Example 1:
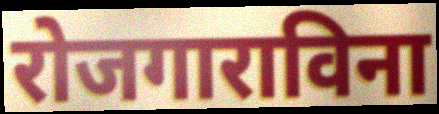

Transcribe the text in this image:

रोजगाराविना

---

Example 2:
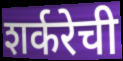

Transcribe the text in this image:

शर्करेची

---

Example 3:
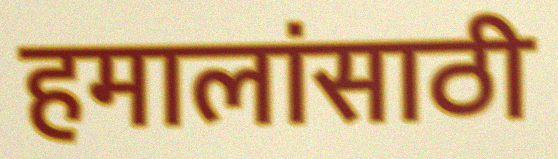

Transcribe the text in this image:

हमालांसाठी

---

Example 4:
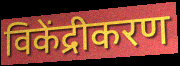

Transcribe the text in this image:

विकेंद्रीकरण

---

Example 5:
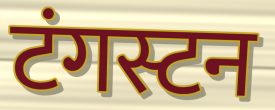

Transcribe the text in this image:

टंगस्टन